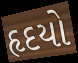
હૃદયો